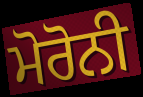
ਮੋਰੋਨੀ